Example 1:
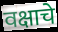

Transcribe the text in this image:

वक्षाचे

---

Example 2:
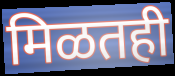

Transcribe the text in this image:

मिळतही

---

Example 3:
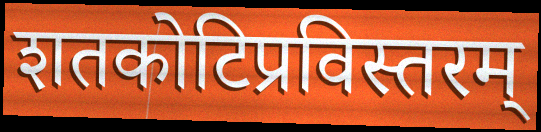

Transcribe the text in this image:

शतकोटिप्रविस्तरम्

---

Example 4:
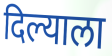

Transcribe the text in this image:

दिल्याला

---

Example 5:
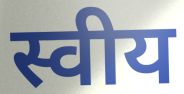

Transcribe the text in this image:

स्वीय